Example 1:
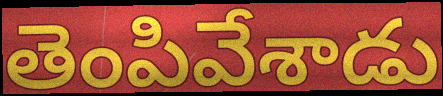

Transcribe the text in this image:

తెంపివేశాడు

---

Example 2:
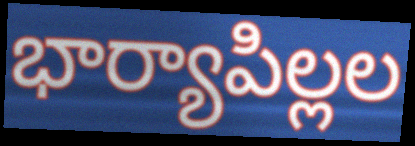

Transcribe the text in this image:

భార్యాపిల్లల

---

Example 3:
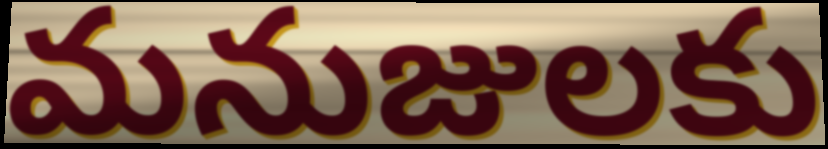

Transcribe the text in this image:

మనుజులకు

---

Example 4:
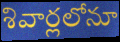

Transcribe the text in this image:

శివార్లలోనూ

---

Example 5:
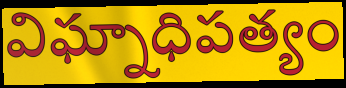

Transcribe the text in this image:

విఘ్నాధిపత్యం